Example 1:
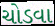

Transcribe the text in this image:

ચોડવા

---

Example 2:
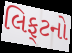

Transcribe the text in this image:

લિફ્‌ટનો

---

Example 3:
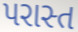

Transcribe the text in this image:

પરાસ્ત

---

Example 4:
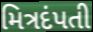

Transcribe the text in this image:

મિત્રદંપતી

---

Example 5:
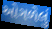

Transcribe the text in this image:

ઓગળેલું